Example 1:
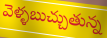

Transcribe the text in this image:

వెళ్ళబుచ్చుతున్న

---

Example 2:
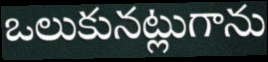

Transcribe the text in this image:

ఒలుకునట్లుగాను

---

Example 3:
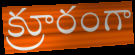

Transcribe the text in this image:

క్రూరంగా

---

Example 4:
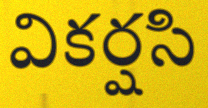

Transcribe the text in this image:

వికర్షసి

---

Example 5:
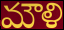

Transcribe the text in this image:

మౌళి